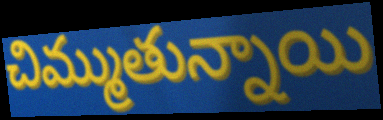
చిమ్ముతున్నాయి